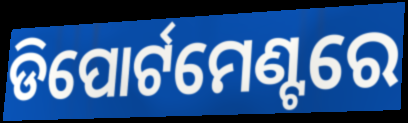
ଡିପୋର୍ଟମେଣ୍ଟରେ